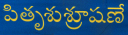
పితృశుశ్రూషణే